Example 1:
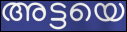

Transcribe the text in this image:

അട്ടയെ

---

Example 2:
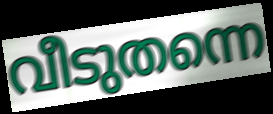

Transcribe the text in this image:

വീടുതന്നെ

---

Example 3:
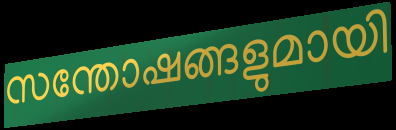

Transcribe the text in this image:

സന്തോഷങ്ങളുമായി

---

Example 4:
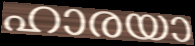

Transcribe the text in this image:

ഹാരയാ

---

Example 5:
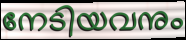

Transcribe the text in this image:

നേടിയവനും